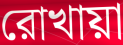
রোখায়া